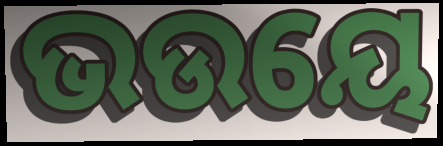
ଭଉୟେ